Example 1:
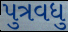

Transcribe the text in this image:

પુત્રવધુ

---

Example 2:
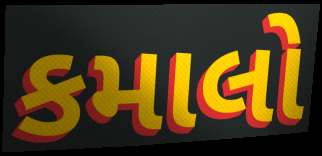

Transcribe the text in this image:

કમાલો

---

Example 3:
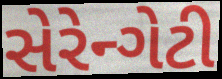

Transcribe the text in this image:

સેરેન્ગેટી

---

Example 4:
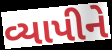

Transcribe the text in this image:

વ્યાપીને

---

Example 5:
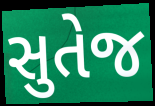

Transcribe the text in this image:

સુતેજ